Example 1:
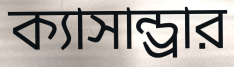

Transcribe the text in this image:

ক্যাসান্ড্রার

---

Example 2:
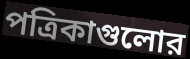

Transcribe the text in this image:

পত্রিকাগুলোর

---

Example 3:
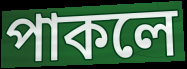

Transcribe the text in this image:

পাকলে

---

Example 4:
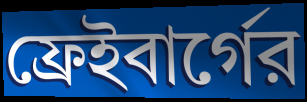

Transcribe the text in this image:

ফ্রেইবার্গের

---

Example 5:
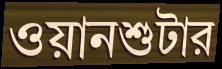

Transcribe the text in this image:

ওয়ানশুটার